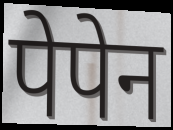
पेपेन